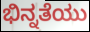
ಭಿನ್ನತೆಯು